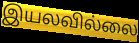
இயலவில்லை